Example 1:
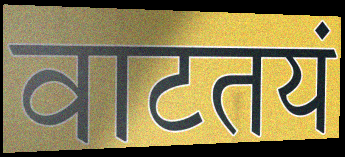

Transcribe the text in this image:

वाटतयं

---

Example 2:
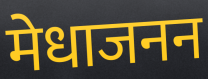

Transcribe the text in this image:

मेधाजनन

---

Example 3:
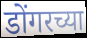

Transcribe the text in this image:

डोंगरच्या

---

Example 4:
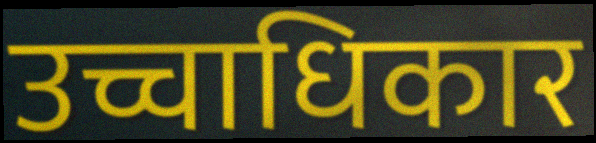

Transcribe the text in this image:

उच्चाधिकार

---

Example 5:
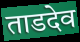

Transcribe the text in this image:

ताडदेव